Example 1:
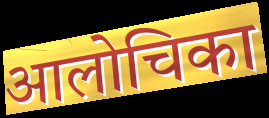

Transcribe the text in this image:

आलोचिका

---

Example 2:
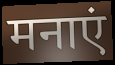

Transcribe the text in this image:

मनाएं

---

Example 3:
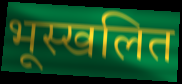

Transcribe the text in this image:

भूस्खलित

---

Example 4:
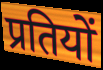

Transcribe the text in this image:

प्रतियों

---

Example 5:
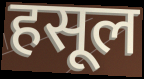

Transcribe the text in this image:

हसूल